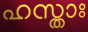
ഹസ്താഃ